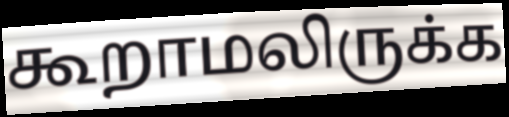
கூறாமலிருக்க